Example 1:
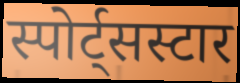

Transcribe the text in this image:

स्पोर्ट्सस्टार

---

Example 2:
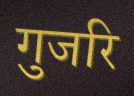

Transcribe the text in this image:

गुजरि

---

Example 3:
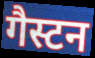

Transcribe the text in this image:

गैस्टन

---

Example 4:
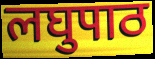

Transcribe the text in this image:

लघुपाठ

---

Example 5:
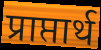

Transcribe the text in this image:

प्राप्तार्थ